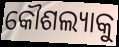
କୌଶଲ୍ୟାକୁ